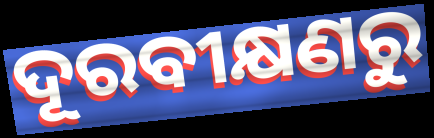
ଦୂରବୀକ୍ଷଣରୁ